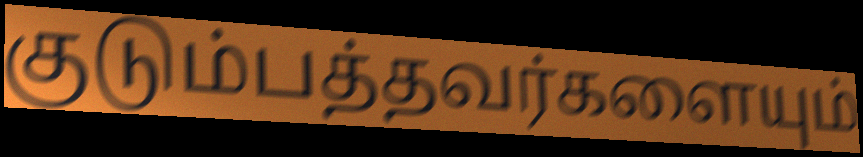
குடும்பத்தவர்களையும்